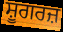
ਸ਼ੂਗਰਜ਼